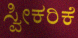
ಸ್ವೀಕರಿಕೆ